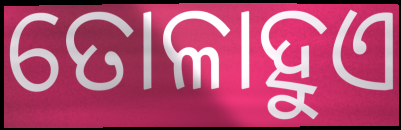
ତୋଳାହୁଏ